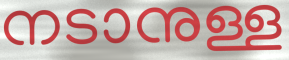
നടാനുള്ള